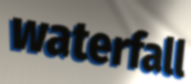
waterfall